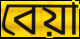
বেয়া